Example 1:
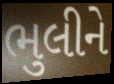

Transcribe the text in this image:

ભુલીને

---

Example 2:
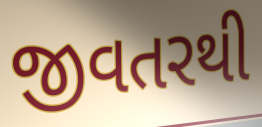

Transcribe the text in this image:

જીવતરથી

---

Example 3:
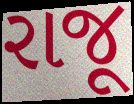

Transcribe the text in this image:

રાજૂ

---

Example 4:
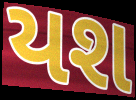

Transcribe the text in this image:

યશ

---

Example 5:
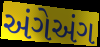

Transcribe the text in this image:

અંગેઅંગ